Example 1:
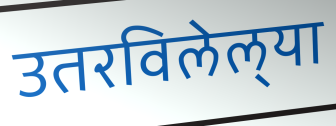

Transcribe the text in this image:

उतरविलेल्या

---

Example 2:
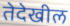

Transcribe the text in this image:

तेदेखील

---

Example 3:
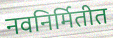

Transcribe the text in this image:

नवनिर्मितीत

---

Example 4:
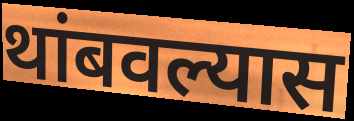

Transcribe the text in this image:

थांबवल्यास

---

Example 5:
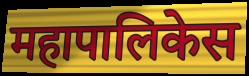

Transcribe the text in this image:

महापालिकेस